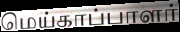
மெய்காப்பாளர்